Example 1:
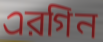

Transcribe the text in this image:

এরগিন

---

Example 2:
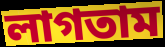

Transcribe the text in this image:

লাগতাম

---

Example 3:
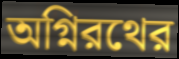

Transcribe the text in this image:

অগ্নিরথের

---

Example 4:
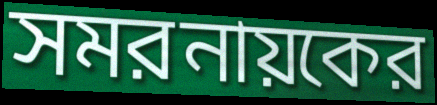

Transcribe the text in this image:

সমরনায়কের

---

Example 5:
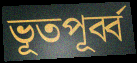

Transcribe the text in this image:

ভূতপূর্ব্ব